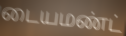
டையமண்ட்